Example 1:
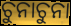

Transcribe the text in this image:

ଚୁନାଚୁନା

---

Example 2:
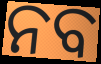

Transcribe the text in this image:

ନବ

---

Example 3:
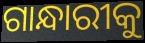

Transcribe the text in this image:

ଗାନ୍ଧାରୀକୁ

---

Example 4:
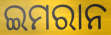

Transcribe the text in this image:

ଇମରାନ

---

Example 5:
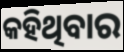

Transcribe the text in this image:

କହିଥିବାର